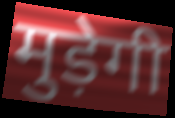
मुड़ेगी